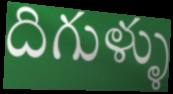
దిగుళ్ళు